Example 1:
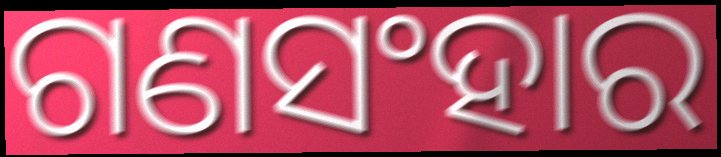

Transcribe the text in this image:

ଗଣସଂହାର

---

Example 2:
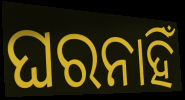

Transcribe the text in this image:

ଘରନାହିଁ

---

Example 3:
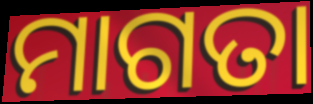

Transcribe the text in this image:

ମାଗତା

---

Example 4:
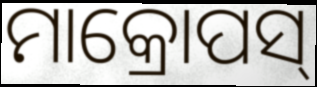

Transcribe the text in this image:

ମାକ୍ରୋପସ୍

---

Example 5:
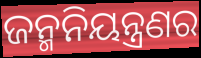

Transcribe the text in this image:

ଜନ୍ମନିୟନ୍ତ୍ରଣର